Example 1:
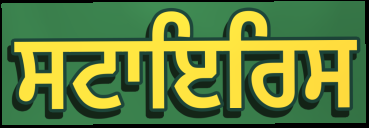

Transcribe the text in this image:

ਸਟਾਇਰਿਸ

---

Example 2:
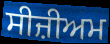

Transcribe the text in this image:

ਸੀਜ਼ੀਅਮ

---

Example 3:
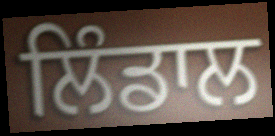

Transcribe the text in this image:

ਲਿੰਡਾਲ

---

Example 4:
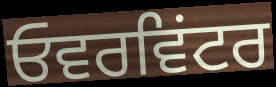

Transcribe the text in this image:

ਓਵਰਵਿਂਟਰ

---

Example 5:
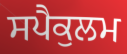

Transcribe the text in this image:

ਸਪੈਕੁਲਮ